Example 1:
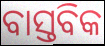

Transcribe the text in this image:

ବାସ୍ତବିକ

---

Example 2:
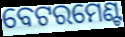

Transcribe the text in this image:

ବେଟରମେଣ୍ଟ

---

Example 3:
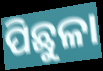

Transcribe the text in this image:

ପିଛୁଳା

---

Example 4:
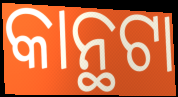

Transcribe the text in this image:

କାନ୍ଥଟା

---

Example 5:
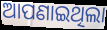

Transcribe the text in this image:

ଆପଣାଇଥିଲା